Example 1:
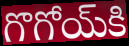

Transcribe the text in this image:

గొగోయ్‌కి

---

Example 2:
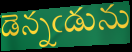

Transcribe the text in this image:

డెన్నఁడును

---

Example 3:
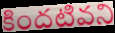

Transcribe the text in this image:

కిందటివని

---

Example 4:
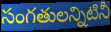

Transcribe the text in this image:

సంగతులన్నిటినీ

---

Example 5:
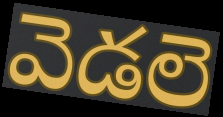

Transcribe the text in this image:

వెడలె